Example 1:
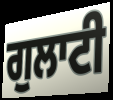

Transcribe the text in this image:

ਗੁਲਾਟੀ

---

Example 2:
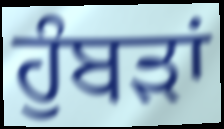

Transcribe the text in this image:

ਹੁੰਬੜਾਂ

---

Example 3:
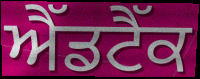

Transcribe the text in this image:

ਐੱਡਟੈੱਕ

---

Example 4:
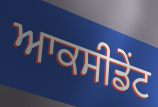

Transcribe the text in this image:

ਆਕਸੀਡੇਂਟ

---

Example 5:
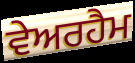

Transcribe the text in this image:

ਵੇਅਰਹੈਮ